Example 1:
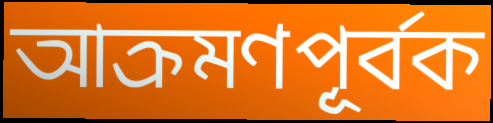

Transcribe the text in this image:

আক্রমণপূর্বক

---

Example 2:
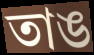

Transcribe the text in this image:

তাঙ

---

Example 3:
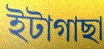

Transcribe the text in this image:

ইটাগাছা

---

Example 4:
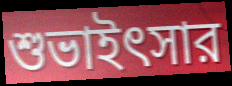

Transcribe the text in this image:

শুভাইৎসার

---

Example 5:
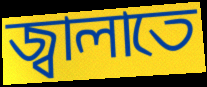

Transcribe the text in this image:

জ্বালাতে